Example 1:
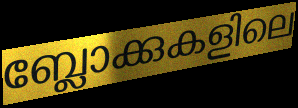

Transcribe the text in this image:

ബ്ലോക്കുകളിലെ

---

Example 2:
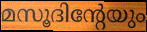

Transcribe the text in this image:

മസൂദിന്റേയും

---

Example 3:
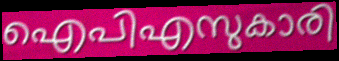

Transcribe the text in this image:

ഐപിഎസുകാരി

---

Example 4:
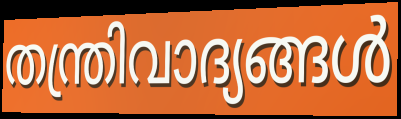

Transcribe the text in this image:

തന്ത്രിവാദ്യങ്ങൾ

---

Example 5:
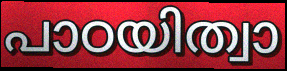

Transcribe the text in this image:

പാഠയിത്വാ